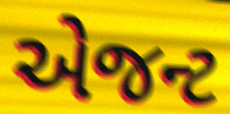
એજન્ટ